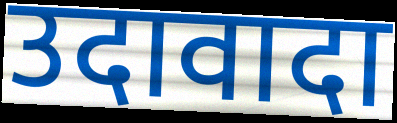
उदावादा